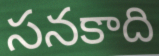
సనకాది